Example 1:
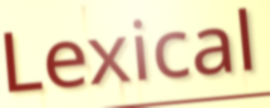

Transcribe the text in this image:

Lexical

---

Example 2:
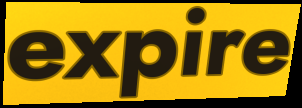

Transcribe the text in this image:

expire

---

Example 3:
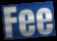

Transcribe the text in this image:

Fee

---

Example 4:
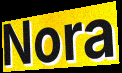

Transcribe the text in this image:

Nora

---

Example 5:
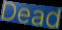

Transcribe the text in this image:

Dead